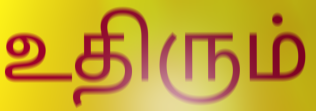
உதிரும்